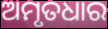
ଅମୃତଧାର